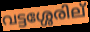
വട്ടശ്ശേരില്